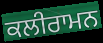
ਕਲੀਰਾਮਨ